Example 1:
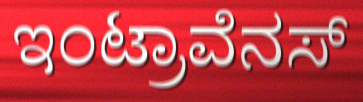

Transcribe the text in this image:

ಇಂಟ್ರಾವೆನಸ್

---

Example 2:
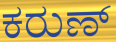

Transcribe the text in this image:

ಕರುಣ್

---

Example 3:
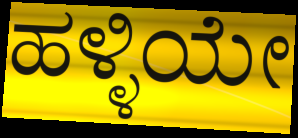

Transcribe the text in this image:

ಹಳ್ಳಿಯೇ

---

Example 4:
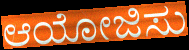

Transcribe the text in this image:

ಆಯೋಜಿಸು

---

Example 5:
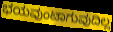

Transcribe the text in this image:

ಭಯವುಂಟಾಗುವುದಿಲ್ಲ